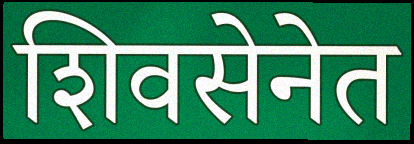
शिवसेनेत